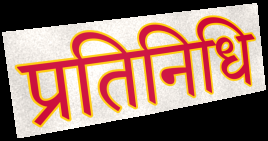
प्रतिनिधि